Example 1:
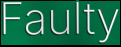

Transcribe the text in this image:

Faulty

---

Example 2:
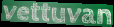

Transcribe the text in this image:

vettuvan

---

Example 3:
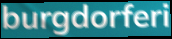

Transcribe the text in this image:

burgdorferi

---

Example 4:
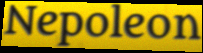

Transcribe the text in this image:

Nepoleon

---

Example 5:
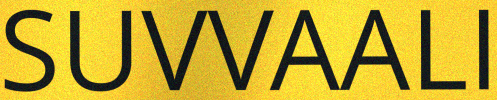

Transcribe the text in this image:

SUVVAALI